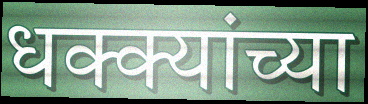
धक्क्यांच्या